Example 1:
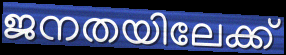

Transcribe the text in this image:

ജനതയിലേക്ക്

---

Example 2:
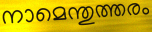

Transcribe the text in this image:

നാമെന്തുത്തരം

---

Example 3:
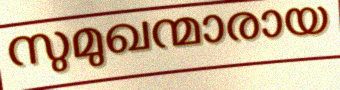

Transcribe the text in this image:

സുമുഖന്മാരായ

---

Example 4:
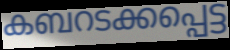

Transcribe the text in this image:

കബറടക്കപ്പെട്ട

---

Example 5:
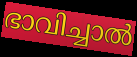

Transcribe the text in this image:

ഭാവിച്ചാൽ